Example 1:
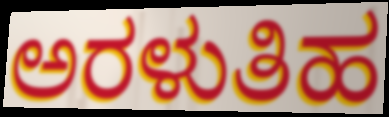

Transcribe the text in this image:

ಅರಳುತಿಹ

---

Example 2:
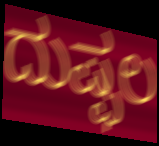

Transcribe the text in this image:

ದುಷ್ಫಲ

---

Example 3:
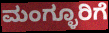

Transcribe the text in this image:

ಮಂಗ್ಳೂರಿಗೆ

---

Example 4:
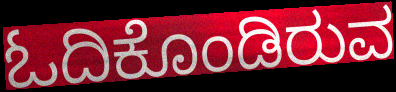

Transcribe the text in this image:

ಓದಿಕೊಂಡಿರುವ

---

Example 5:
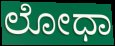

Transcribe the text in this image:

ಲೋಧಾ